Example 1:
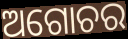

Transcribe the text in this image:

ଅଗୋଚର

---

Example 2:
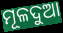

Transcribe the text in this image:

ମୂଳଦୁଆ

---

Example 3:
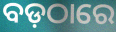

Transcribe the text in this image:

ବଡ଼ଠାରେ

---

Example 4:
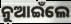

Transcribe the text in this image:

ନୁଆଇଁଲେ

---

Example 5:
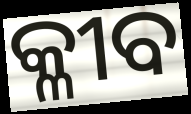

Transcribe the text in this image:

କ୍ଳୀବ